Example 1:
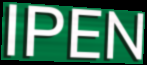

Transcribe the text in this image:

IPEN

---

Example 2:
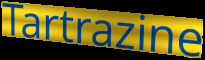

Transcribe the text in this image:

Tartrazine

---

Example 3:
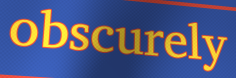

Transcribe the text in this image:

obscurely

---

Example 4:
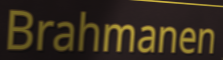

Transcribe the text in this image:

Brahmanen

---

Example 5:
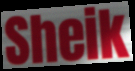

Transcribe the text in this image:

Sheik